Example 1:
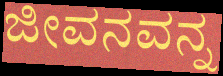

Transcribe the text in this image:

ಜೀವನವನ್ನ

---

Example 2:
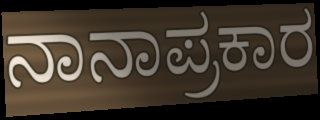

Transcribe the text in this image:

ನಾನಾಪ್ರಕಾರ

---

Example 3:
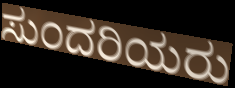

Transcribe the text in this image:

ಸುಂದರಿಯರು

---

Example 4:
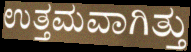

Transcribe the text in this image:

ಉತ್ತಮವಾಗಿತ್ತು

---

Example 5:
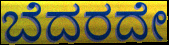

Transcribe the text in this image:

ಬೆದರದೇ